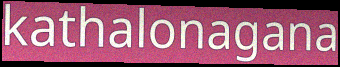
kathalonagana